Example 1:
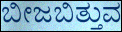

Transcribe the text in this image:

ಬೀಜಬಿತ್ತುವ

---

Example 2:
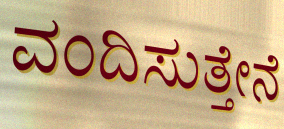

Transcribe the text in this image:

ವಂದಿಸುತ್ತೇನೆ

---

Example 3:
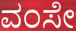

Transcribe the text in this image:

ವಂಸೇ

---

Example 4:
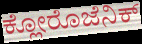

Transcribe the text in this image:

ಕ್ಲೋರೊಜೆನಿಕ್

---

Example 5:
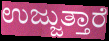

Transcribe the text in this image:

ಉಜ್ಜುತ್ತಾರೆ